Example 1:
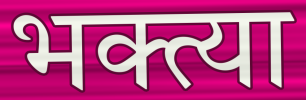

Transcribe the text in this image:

भक्त्या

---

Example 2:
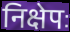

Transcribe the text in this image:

निक्षेपः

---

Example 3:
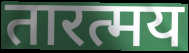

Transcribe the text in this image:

तारत्मय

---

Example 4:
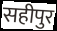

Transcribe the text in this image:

सहीपुर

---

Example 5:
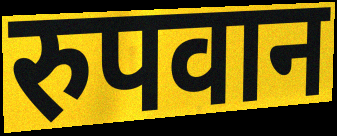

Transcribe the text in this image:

रुपवान